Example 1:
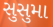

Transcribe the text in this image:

સુસુમા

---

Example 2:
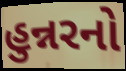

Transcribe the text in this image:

હુન્નરનો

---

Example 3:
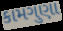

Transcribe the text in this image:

કામગુણા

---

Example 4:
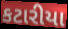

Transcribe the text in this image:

કટારીયા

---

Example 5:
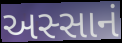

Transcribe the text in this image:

અસ્સાનં